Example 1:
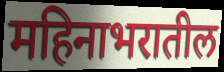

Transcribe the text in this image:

महिनाभरातील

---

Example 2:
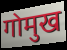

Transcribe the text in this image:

गोमुख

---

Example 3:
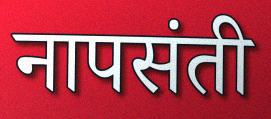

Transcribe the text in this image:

नापसंती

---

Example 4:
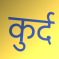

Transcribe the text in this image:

कुर्द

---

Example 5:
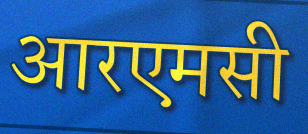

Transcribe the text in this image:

आरएमसी